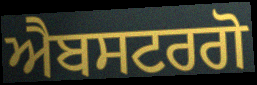
ਐਬਸਟਰਗੋ